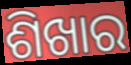
ଶିଖାର